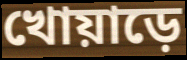
খোয়াড়ে